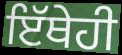
ਇੱਥੇਹੀ